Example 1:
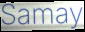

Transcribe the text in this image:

Samay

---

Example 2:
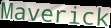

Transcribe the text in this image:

Maverick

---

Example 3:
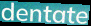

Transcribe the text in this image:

dentate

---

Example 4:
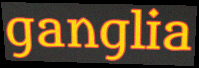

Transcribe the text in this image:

ganglia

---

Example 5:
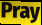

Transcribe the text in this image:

Pray